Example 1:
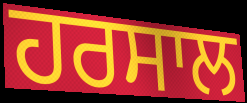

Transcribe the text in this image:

ਹਰਸਾਲ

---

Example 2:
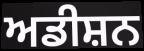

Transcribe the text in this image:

ਅਡੀਸ਼ਨ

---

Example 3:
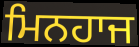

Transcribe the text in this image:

ਮਿਨਹਾਜ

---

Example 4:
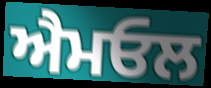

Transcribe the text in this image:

ਐਮਓਲ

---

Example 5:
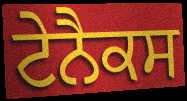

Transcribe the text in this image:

ਟੇਨੈਕਸ